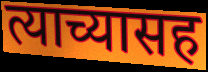
त्याच्यासह